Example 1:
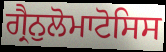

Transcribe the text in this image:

ਗ੍ਰੈਨੁਲੋਮਾਟੋਸਿਸ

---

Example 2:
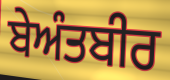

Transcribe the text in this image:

ਬੇਅੰਤਬੀਰ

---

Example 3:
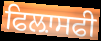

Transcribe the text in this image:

ਫਿਲ਼ਾਸਫੀ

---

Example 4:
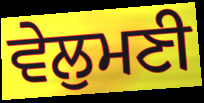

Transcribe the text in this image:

ਵੇਲੁਮਣੀ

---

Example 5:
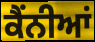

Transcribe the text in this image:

ਕੈਂਨੀਆਂ